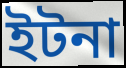
ইটনা